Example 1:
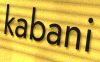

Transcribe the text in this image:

kabani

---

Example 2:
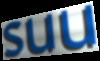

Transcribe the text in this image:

suu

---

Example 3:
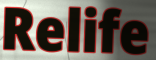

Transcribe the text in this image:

Relife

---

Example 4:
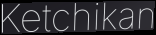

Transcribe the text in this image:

Ketchikan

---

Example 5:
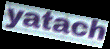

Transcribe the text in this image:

yatach